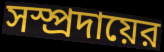
সস্প্রদায়ের